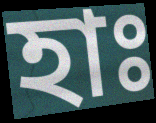
হাঃ